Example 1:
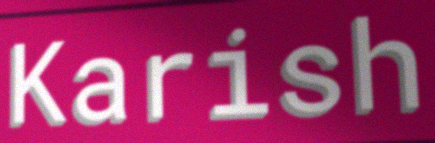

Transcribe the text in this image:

Karish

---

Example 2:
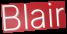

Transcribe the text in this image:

Blair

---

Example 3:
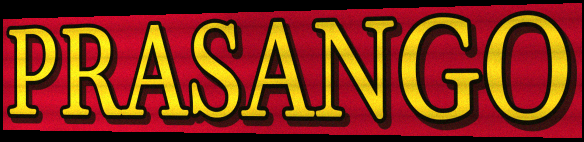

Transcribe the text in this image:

PRASANGO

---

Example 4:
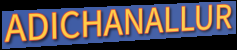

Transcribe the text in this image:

ADICHANALLUR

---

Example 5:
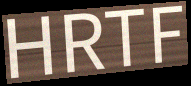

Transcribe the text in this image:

HRTF